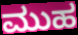
ಮುಹ